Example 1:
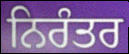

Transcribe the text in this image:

ਨਿਰੰਤਰ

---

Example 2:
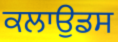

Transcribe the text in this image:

ਕਲਾਉਡਸ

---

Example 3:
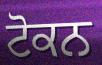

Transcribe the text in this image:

ਟੋਕਨ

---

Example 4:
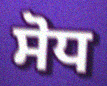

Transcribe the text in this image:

ਸੋਧ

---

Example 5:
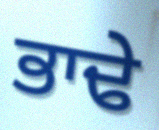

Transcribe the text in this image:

ਭਾਢੇ